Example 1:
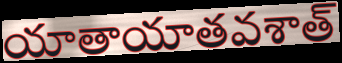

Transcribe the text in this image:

యాతాయాతవశాత్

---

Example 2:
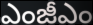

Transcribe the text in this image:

ఎంజీఎం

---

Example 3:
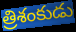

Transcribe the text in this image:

త్రిశంకుడు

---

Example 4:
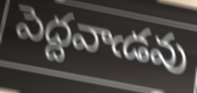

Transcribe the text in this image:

పెద్దవాఁడవు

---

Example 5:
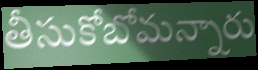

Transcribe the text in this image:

తీసుకోబోమన్నారు